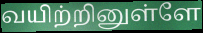
வயிற்றினுள்ளே